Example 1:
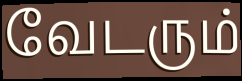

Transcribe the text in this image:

வேடரும்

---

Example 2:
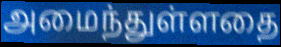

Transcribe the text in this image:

அமைந்துள்ளதை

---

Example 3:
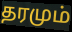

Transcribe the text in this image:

தரமும்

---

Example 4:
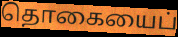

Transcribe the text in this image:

தொகையைப்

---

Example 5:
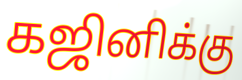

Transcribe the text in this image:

கஜினிக்கு